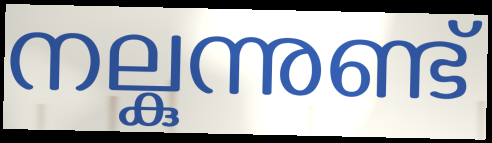
നല്കുന്നുണ്ട്